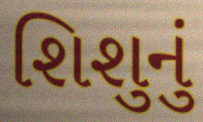
શિશુનું